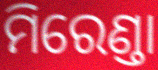
ମିରେଣ୍ଡା